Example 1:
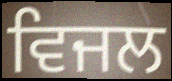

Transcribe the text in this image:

ਵਿਜਲ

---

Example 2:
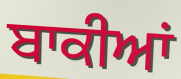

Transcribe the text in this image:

ਬਾਕੀਆਂ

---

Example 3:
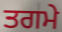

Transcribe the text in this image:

ਤਗਮੇ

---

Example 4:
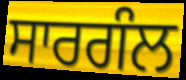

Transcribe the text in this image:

ਸਾਰਗੰਲ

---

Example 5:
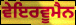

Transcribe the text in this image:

ਵੇਇਰਵੂਮੈਨ